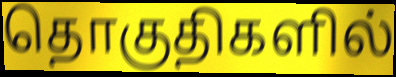
தொகுதிகளில்